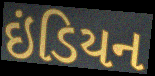
ઇંડિયન